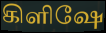
கிளிஷே